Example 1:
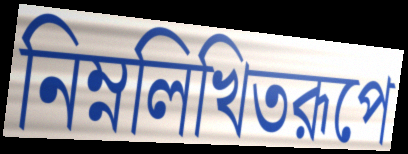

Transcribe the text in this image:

নিম্নলিখিতরূপে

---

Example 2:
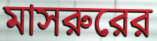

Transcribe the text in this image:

মাসরুরের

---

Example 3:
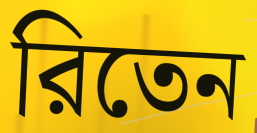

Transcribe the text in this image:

রিতেন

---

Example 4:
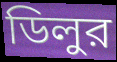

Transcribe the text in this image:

ডিলুর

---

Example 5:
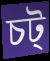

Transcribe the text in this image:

চট্